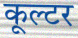
कूल्‍टर